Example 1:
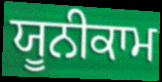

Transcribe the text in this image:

ਯੂਨੀਕਾਮ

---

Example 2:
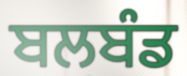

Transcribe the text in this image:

ਬਲਬੰਡ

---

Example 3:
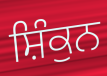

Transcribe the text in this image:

ਸ਼ਿੰਕੁਨ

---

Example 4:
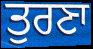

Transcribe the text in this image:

ਤੁਰਣਾ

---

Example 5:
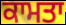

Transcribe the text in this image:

ਕਾਮਤਾ